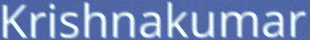
Krishnakumar